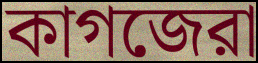
কাগজেরা